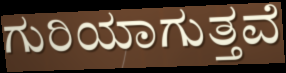
ಗುರಿಯಾಗುತ್ತವೆ